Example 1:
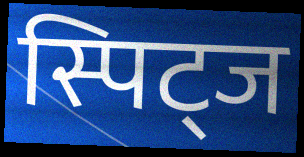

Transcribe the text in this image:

स्पिट्ज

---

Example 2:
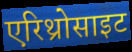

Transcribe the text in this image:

एरिथ्रोसाइट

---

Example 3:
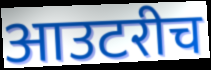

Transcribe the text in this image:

आउटरीच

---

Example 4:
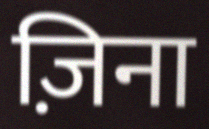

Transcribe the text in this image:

ज़िना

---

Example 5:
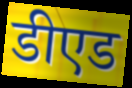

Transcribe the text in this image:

डीएड